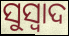
ସୁସ୍ୱାଦ